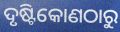
ଦୃଷ୍ଟିକୋଣଠାରୁ